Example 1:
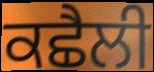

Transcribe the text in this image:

ਕਛੈਲੀ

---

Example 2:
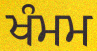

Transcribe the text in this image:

ਖੰਮਮ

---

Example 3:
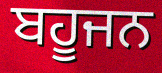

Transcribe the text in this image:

ਬਹੂਜਨ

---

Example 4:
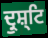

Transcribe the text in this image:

ਦ੍ਰੁਸ਼੍ਟਿ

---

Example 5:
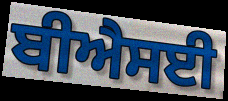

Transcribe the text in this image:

ਬੀਐਸਈ